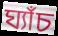
ঘ্যাঁচ